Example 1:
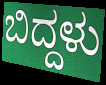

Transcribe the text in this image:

ಬಿದ್ದಳು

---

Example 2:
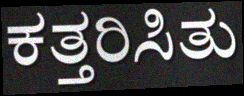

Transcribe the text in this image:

ಕತ್ತರಿಸಿತು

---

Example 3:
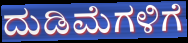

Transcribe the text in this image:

ದುಡಿಮೆಗಳಿಗೆ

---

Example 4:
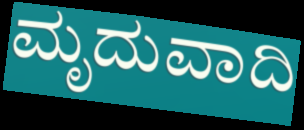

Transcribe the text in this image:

ಮೃದುವಾದಿ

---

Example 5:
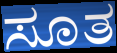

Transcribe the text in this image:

ಸೂತ